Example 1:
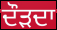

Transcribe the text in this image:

ਦੌੜਦਾ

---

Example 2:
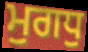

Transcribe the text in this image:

ਮੁਗਧੁ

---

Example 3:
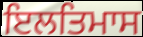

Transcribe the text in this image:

ਇਲਤਿਮਾਸ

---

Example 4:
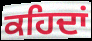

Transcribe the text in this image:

ਕਹਿਦਾਂ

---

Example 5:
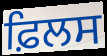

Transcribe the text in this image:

ਫ਼ਿਲਸ